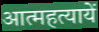
आत्महत्यायें